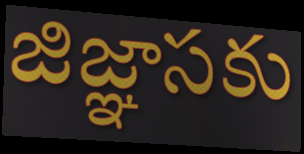
జిజ్ఞాసకు